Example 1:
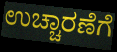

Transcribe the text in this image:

ಉಚ್ಚಾರಣೆಗೆ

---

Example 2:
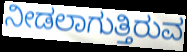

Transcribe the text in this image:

ನೀಡಲಾಗುತ್ತಿರುವ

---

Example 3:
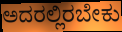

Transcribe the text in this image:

ಅದರಲ್ಲಿರಬೇಕು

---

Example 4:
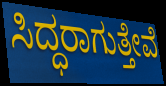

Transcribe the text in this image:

ಸಿದ್ಧರಾಗುತ್ತೇವೆ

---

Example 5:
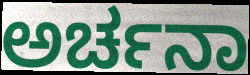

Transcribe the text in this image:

ಅರ್ಚನಾ